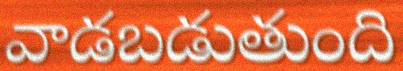
వాడబడుతుంది